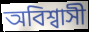
অবিশ্বাসী